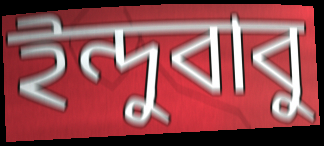
ইন্দুবাবু